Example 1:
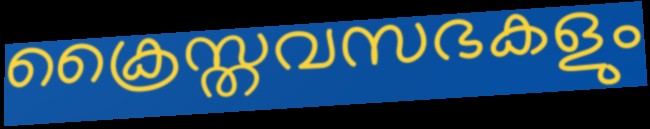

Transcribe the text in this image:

ക്രൈസ്തവസഭകളും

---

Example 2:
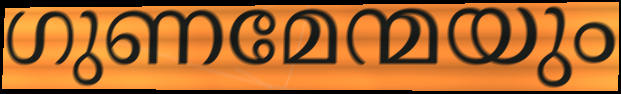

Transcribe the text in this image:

ഗുണമേന്മയും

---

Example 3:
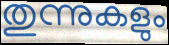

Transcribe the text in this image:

തുന്നുകളും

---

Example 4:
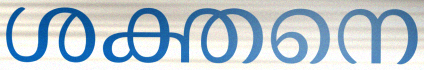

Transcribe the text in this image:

ശക്തനെ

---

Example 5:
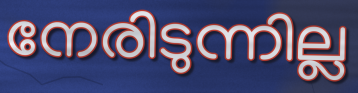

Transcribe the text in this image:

നേരിടുന്നില്ല